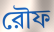
রৌফ